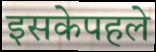
इसकेपहले